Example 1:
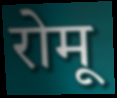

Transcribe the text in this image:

रोमू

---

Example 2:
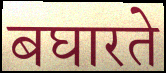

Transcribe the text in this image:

बघारते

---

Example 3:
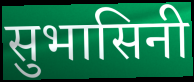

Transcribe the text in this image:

सुभासिनी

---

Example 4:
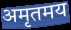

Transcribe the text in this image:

अमृतमय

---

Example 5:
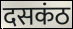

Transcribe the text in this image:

दसकंठ